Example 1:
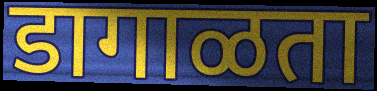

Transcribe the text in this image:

डागाळता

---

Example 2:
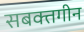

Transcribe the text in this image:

सबक्तगीन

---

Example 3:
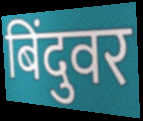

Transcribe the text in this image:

बिंदुवर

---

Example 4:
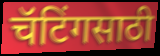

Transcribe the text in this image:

चॅटिंगसाठी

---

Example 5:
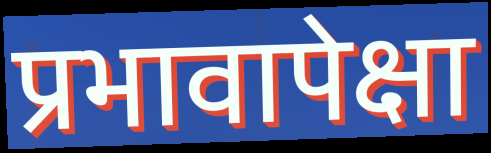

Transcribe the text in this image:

प्रभावापेक्षा